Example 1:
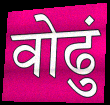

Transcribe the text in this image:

वोढुं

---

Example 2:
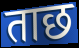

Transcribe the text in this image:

ताछ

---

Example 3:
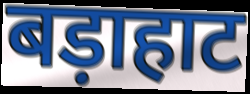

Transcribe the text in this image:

बड़ाहाट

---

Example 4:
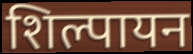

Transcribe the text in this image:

शिल्पायन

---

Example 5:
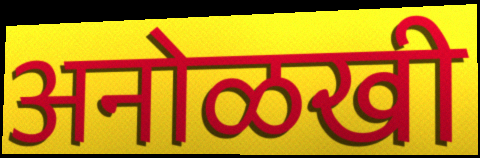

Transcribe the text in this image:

अनोळखी